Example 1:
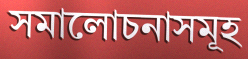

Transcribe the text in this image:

সমালোচনাসমূহ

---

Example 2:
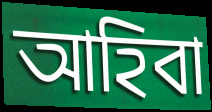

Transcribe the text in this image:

আহিবা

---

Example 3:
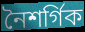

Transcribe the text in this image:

নৈশৰ্গিক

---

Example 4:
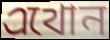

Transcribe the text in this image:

এথোন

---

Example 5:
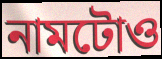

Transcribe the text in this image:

নামটোও